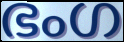
ഭംഗ